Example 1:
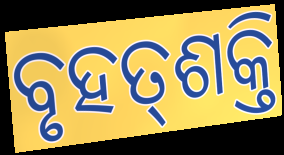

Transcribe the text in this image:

ବୃହତ୍‌ଶକ୍ତି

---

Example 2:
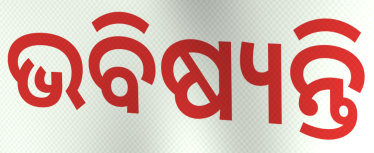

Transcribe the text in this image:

ଭବିଷ୍ୟନ୍ତି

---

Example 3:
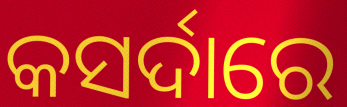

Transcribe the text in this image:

କସର୍ଦାରେ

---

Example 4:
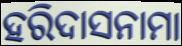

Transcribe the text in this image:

ହରିଦାସନାମା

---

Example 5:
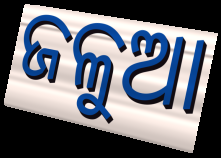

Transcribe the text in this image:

ଜଳୁଆ